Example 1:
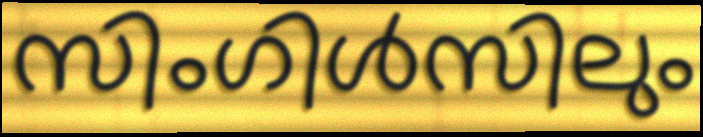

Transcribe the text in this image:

സിംഗിൾസിലും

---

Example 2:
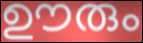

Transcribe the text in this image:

ഊരും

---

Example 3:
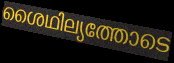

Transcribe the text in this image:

ശൈഥില്യത്തോടെ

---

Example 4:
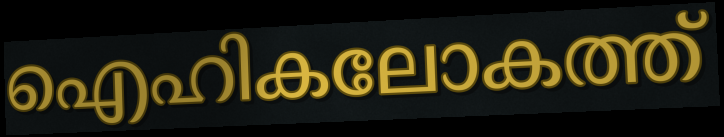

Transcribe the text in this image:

ഐഹികലോകത്ത്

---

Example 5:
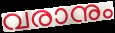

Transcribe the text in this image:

വരാനും